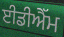
ਈਡੀਐੱਮ